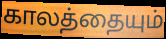
காலத்தையும்